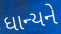
ધાન્યને